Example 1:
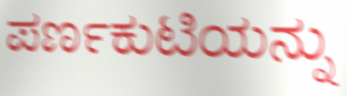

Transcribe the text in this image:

ಪರ್ಣಕುಟಿಯನ್ನು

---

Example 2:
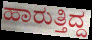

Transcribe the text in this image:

ಹಾರುತ್ತಿದ್ದ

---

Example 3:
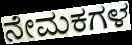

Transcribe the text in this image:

ನೇಮಕಗಳ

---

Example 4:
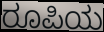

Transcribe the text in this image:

ರೂಪಿಯ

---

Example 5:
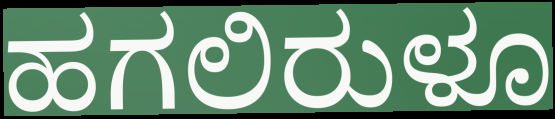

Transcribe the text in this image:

ಹಗಲಿರುಳೂ